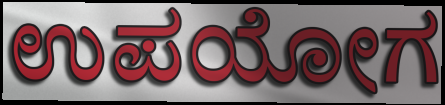
ಉಪಯೋಗ